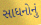
સાધનોનું